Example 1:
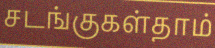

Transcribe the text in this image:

சடங்குகள்தாம்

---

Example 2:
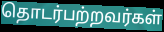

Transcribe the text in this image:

தொடர்பற்றவர்கள்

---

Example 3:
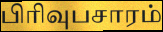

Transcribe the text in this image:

பிரிவுபசாரம்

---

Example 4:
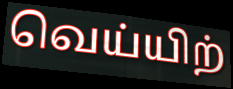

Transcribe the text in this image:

வெய்யிற்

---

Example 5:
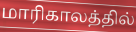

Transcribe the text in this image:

மாரிகாலத்தில்